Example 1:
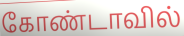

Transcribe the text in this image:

கோண்டாவில்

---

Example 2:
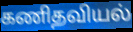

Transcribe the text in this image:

கணிதவியல்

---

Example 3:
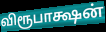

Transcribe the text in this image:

விரூபாக்ஷன்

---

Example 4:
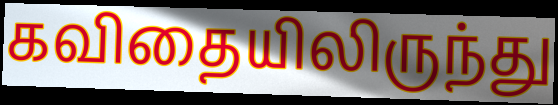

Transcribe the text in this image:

கவிதையிலிருந்து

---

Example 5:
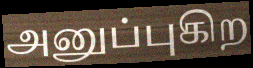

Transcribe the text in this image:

அனுப்புகிற